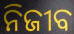
ନିଜୀବ